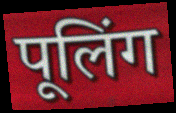
पूलिंग